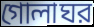
গোলাঘর